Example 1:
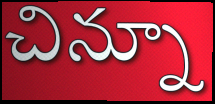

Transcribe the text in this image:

చిన్నూ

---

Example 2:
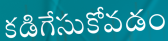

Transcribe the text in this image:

కడిగేసుకోవడం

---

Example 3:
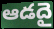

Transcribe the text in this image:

ఆడదై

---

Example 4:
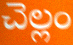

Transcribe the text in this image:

చెల్లం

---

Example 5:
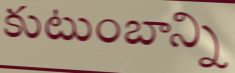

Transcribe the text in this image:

కుటుంబాన్ని